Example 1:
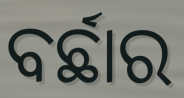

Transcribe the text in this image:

ବର୍ଛାର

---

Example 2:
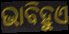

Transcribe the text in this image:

ଭାବିହୁଏ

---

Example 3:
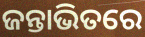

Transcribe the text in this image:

ଜନ୍ତାଭିତରେ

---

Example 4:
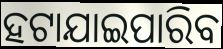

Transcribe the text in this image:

ହଟାଯାଇପାରିବ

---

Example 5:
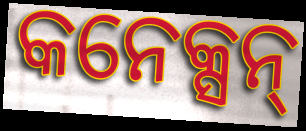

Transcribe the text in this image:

କନେକ୍ସନ୍